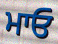
ਮਾਓ